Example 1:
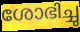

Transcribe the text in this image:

ശോഭിച്ചു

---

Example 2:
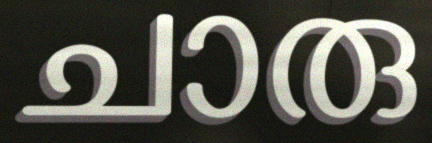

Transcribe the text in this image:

ചാരു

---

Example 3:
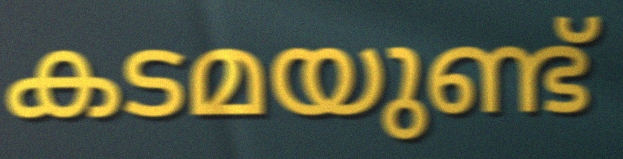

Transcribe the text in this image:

കടമയുണ്ട്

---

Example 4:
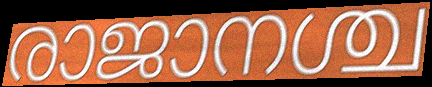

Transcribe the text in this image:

രാജാനശ്ച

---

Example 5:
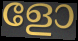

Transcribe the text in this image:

ളോ